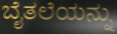
ಬೈತಲೆಯನ್ನು